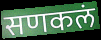
सणकलं